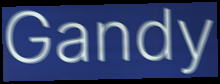
Gandy